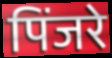
पिंजरे